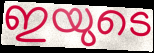
ഇയുടെ